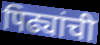
पिढ्यांची